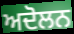
ਅਦੋਲਨ